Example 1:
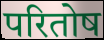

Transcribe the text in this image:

परितोष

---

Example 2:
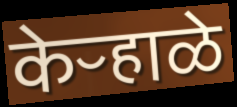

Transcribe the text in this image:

केऱ्हाळे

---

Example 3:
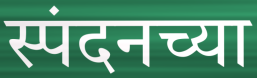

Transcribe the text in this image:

स्पंदनच्या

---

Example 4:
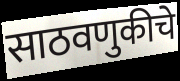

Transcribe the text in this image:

साठवणुकीचे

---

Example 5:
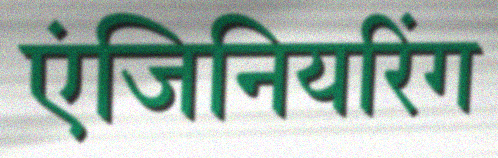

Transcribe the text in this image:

एंजिनियरिंग